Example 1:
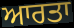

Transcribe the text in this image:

ਆਰਤਾ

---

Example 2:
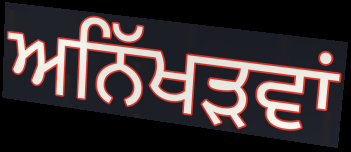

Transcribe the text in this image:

ਅਨਿੱਖੜਵਾਂ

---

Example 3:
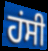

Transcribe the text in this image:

ਹਂਸੀ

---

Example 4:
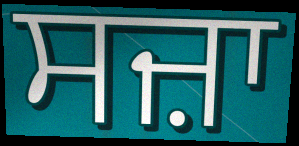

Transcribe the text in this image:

ਸਜ਼ਾ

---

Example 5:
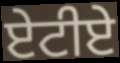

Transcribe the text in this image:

ਏਟੀਏ